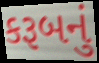
કરૂબનું